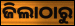
ଜିଲାଠାରୁ